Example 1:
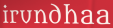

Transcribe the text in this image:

irundhaa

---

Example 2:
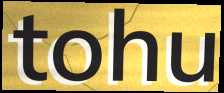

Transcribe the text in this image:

tohu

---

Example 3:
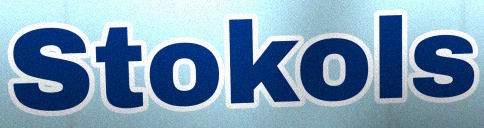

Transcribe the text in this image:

Stokols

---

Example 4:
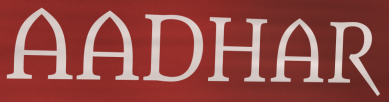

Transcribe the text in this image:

AADHAR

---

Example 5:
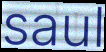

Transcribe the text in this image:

saul